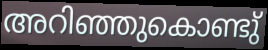
അറിഞ്ഞുകൊണ്ടു്